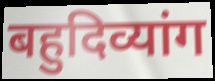
बहुदिव्यांग